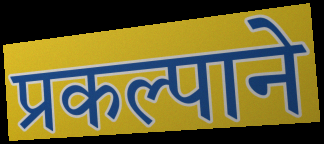
प्रकल्पाने